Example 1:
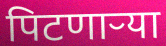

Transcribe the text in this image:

पिटणाऱ्या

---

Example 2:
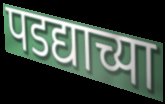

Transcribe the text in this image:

पडद्याच्या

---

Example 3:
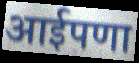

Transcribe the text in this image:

आईपणा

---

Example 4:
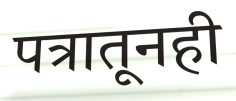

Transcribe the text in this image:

पत्रातूनही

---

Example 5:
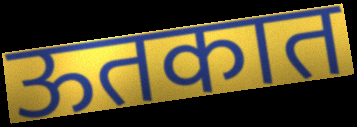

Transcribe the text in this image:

ऊतकात